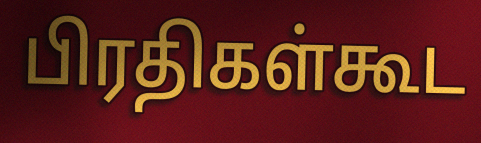
பிரதிகள்கூட